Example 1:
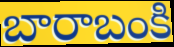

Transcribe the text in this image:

బారాబంకి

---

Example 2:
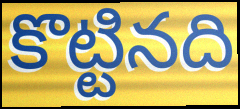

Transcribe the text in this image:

కొట్టినది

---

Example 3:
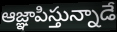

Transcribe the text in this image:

ఆజ్ఞాపిస్తున్నాడే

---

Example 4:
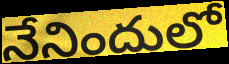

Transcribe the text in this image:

నేనిందులో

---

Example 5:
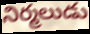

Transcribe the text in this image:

నిర్మలుడు